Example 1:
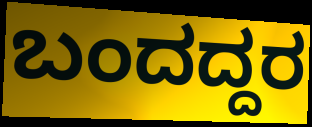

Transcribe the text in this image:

ಬಂದದ್ದರ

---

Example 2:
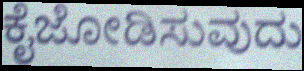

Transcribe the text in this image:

ಕೈಜೋಡಿಸುವುದು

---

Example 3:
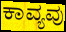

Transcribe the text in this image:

ಕಾವ್ಯವು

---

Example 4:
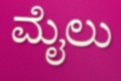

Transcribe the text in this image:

ಮೈಲು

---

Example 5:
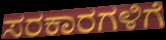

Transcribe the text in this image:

ಸರಕಾರಗಳಿಗೆ